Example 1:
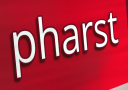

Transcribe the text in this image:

pharst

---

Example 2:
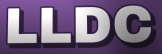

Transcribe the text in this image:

LLDC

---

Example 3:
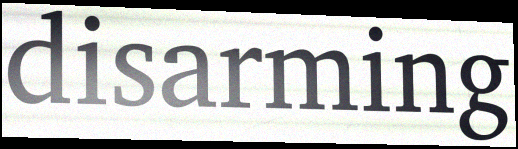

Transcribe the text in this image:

disarming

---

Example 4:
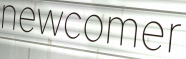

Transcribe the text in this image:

newcomer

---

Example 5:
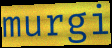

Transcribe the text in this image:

murgi